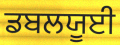
ਡਬਲਯੂਈ